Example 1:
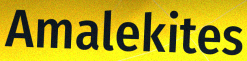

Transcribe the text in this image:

Amalekites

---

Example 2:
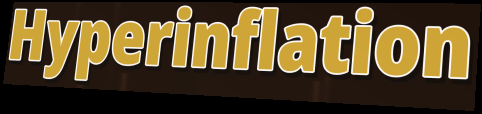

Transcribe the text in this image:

Hyperinflation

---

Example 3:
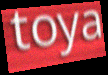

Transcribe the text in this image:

toya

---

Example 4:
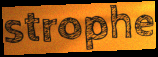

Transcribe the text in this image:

strophe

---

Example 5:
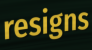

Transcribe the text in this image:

resigns